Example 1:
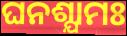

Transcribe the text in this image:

ଘନଶ୍ଯାମଃ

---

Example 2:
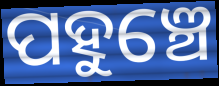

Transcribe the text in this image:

ପହୁଞ୍ଚେ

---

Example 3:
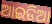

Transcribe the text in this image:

ଆଇଡିଆ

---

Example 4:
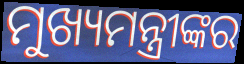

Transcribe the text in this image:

ମୁଖ୍ୟମନ୍ତ୍ରୀଙ୍କର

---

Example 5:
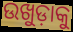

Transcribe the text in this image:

ଉଖୁଡ଼ାକୁ